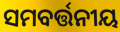
ସମବର୍ତ୍ତନୀୟ